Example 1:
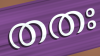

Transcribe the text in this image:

തതഃ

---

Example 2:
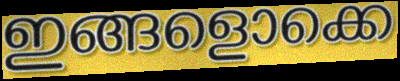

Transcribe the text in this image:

ഇങ്ങളൊക്കെ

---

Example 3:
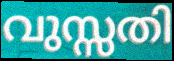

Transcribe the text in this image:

വുസ്സതി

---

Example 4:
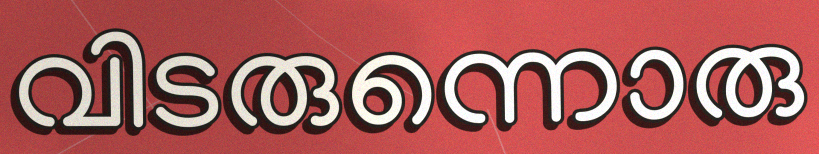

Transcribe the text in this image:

വിടരുന്നൊരു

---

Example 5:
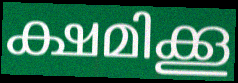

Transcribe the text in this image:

ക്ഷമിക്കൂ